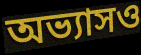
অভ্যাসও